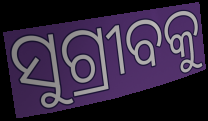
ସୁଗ୍ରୀବକୁ